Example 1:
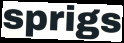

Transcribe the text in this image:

sprigs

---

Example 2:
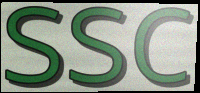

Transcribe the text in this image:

ssc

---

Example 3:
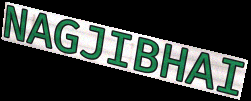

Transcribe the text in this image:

NAGJIBHAI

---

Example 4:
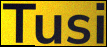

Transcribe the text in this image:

Tusi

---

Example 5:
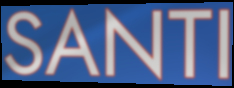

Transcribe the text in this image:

SANTI